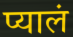
प्यालं